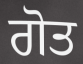
ਗੋਤ